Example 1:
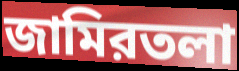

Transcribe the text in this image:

জামিরতলা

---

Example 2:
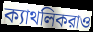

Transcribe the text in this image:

ক্যাথলিকরাও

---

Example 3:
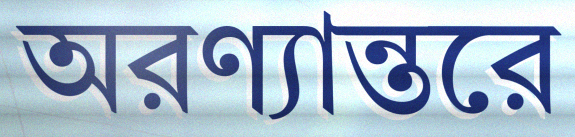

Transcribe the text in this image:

অরণ্যান্তরে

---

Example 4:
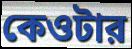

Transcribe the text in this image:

কেওটার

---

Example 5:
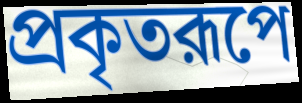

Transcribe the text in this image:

প্রকৃতরূপে